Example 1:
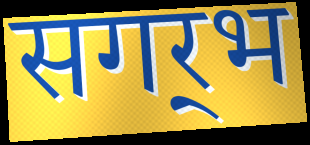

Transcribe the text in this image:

सगर्भ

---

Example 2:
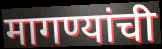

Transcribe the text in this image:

मागण्यांची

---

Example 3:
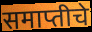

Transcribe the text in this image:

समाप्तीचे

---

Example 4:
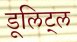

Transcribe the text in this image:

डूलिट्ल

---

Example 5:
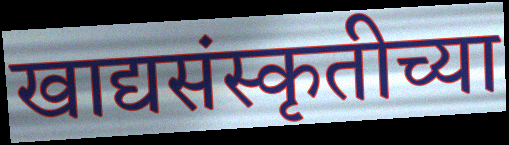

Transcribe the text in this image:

खाद्यसंस्कृतीच्या